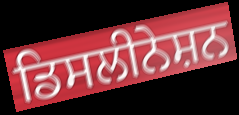
ਡਿਸਲੀਨੇਸ਼ਨ